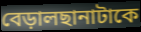
বেড়ালছানাটাকে